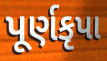
પૂર્ણકૃપા